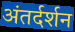
अंतर्दर्शन